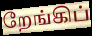
றேங்கிப்